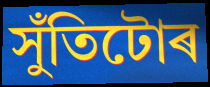
সুঁতিটোৰ